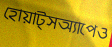
হোয়াট্‌সঅ্যাপেও